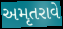
અમૃતરાવે